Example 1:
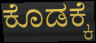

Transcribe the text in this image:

ಕೊಡಕ್ಕೆ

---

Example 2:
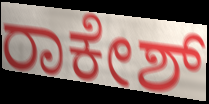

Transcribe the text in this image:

ರಾಕೇಶ್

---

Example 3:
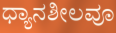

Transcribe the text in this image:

ಧ್ಯಾನಶೀಲವೂ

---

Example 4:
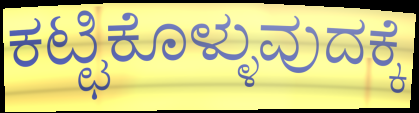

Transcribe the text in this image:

ಕಟ್ಟಿಕೊಳ್ಳುವುದಕ್ಕೆ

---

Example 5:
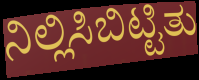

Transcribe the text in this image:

ನಿಲ್ಲಿಸಿಬಿಟ್ಟಿತು